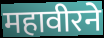
महावीरने